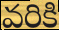
వరికి